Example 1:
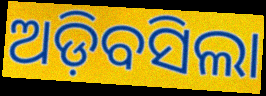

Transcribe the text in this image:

ଅଡ଼ିବସିଲା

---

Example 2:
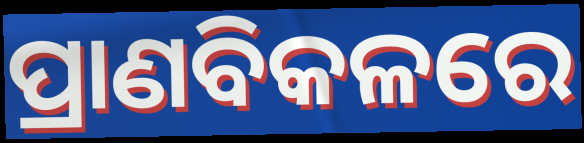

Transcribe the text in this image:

ପ୍ରାଣବିକଳରେ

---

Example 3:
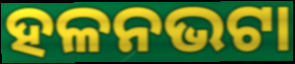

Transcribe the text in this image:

ହଳନଭଟା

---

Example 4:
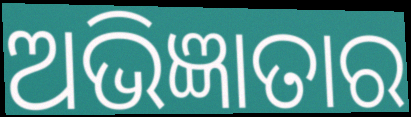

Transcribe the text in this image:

ଅଭିଜ୍ଞାତାର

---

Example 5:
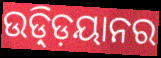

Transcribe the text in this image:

ଉଡ଼୍ଡ଼ିୟାନର